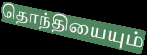
தொந்தியையும்